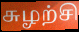
சுழற்சி